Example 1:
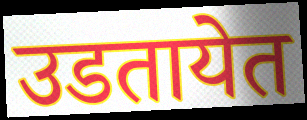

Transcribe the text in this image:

उडतायेत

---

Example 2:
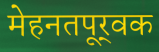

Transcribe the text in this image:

मेहनतपूर्वक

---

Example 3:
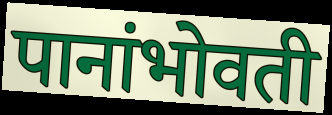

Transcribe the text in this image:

पानांभोवती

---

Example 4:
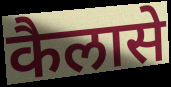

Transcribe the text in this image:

कैलासे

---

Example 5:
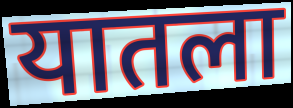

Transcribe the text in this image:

यातला